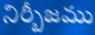
నిర్బీజము